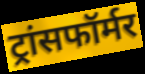
ट्रांसफॉर्मर